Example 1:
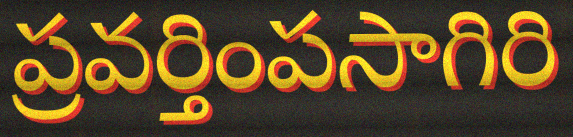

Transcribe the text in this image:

ప్రవర్తింపసాగిరి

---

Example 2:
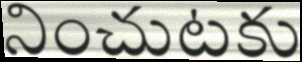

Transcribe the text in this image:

నించుటకు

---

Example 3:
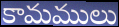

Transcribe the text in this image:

కామములు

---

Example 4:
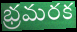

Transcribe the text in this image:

భ్రమరక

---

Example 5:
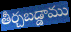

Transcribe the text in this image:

తీర్చబడ్డాము